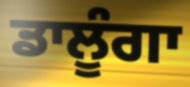
ਡਾਲੂੰਗਾ